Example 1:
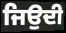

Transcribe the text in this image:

ਜਿਉਦੀ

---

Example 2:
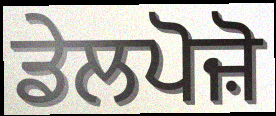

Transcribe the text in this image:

ਡੇਲਪੋਜ਼ੋ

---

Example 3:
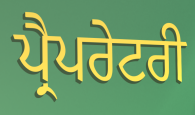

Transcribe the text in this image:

ਪ੍ਰੈਪਰੇਟਰੀ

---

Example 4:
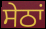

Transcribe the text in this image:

ਸੇਠਾਂ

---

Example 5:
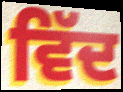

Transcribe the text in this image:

ਵਿੱਦ